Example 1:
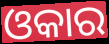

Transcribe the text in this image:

ଓକାର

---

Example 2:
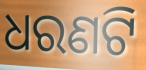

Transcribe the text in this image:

ଧରଣଟି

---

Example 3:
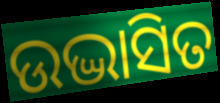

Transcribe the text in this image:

ଉଦ୍ଭାସିତ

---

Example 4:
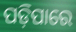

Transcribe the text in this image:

ପଡ଼ିପାରେ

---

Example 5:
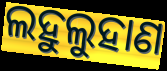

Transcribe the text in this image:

ଲହୁଲୁହାଣ